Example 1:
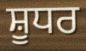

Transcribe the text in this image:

ਸ਼ੂਧਰ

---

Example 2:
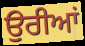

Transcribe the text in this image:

ਉਰੀਆਂ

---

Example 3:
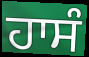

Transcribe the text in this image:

ਹਾਸੰ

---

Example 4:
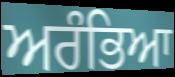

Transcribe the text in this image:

ਅਰੰਭਿਆ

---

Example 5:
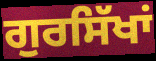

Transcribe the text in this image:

ਗੁਰਸਿੱਖਾਂ